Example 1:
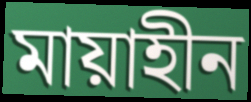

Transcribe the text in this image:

মায়াহীন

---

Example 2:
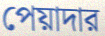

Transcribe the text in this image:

পেয়াদার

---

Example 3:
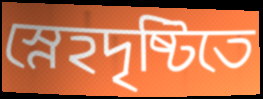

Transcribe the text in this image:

স্নেহদৃষ্টিতে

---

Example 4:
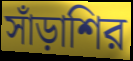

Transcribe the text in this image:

সাঁড়াশির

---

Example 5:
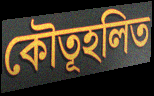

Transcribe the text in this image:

কৌতূহলিত